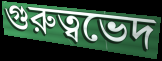
গুরুত্বভেদ